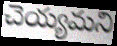
చెయ్యమని